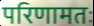
परिणामतः